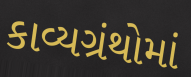
કાવ્યગ્રંથોમાં